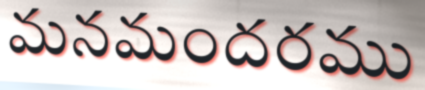
మనమందరము